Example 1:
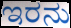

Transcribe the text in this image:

ಇರನು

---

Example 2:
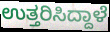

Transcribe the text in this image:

ಉತ್ತರಿಸಿದ್ದಾಳೆ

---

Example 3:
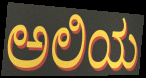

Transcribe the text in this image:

ಅಲಿಯ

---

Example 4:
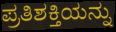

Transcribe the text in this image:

ಪ್ರತಿಶಕ್ತಿಯನ್ನು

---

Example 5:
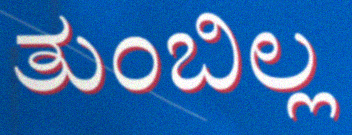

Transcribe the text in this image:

ತುಂಬಿಲ್ಲ